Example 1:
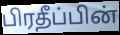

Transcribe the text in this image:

பிரதீப்பின்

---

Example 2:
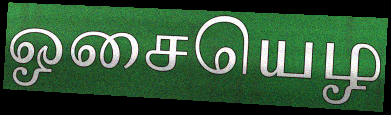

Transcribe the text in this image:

ஓசையெழ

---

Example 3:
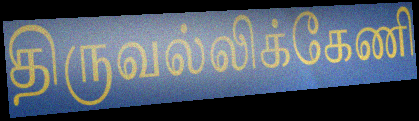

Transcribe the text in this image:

திருவல்லிக்கேணி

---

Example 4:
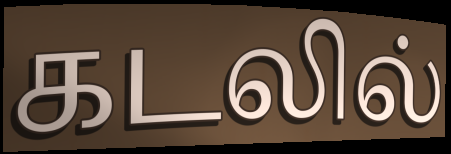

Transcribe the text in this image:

கடலில்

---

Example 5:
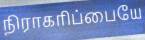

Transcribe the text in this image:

நிராகரிப்பையே